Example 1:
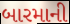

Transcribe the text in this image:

બારમાની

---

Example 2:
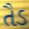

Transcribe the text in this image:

તૈડ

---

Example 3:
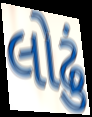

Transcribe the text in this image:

લોઢું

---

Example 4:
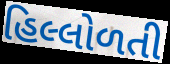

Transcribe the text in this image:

હિલ્લોળતી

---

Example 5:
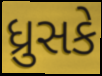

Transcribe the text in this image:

ધ્રુસકે